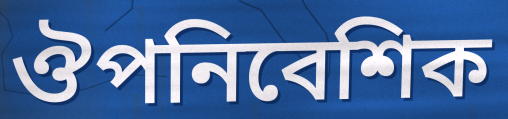
ঔপনিবেশিক